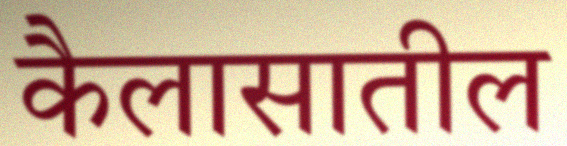
कैलासातील